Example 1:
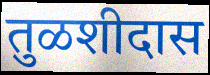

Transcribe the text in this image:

तुळशीदास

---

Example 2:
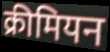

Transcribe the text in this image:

क्रीमियन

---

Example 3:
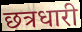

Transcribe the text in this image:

छत्रधारी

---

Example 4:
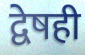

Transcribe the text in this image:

द्वेषही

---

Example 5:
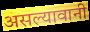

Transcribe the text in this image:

असल्यावानी